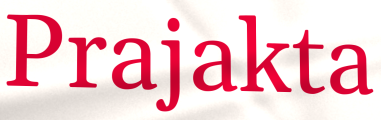
Prajakta